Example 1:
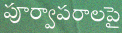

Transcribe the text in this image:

పూర్వాపరాలపై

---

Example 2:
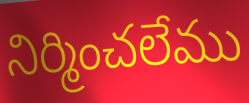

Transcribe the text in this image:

నిర్మించలేము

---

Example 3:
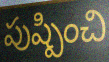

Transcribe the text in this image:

పుష్పించి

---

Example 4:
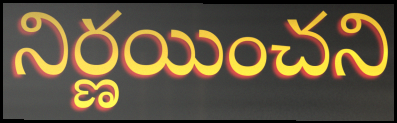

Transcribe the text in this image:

నిర్ణయించని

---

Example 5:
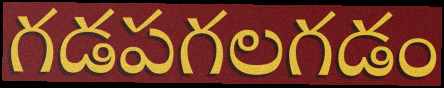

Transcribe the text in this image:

గడపగలగడం